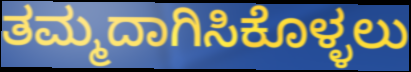
ತಮ್ಮದಾಗಿಸಿಕೊಳ್ಳಲು